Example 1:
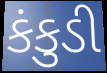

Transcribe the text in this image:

કંકુડી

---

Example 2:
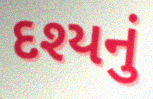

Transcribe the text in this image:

દશ્યનું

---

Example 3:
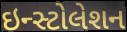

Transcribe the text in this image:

ઇન્સ્ટોલેશન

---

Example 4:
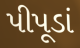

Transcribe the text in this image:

પીપૂડાં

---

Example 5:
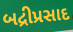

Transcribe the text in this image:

બદ્રીપ્રસાદ